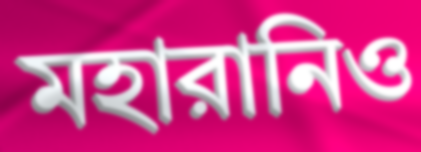
মহারানিও